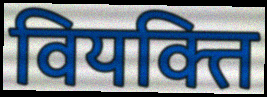
वियक्ति